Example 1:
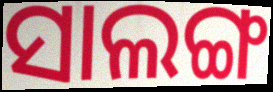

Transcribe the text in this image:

ସାଲଙ୍ଗ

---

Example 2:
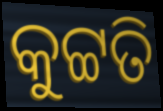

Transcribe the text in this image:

କୁଟ୍ଟତି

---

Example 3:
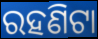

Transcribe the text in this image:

ରହଣିଟା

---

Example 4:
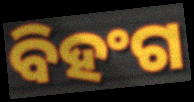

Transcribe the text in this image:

ବିହଂଗ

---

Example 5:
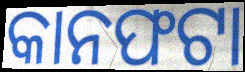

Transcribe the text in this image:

କାନଫଟା